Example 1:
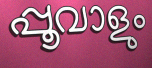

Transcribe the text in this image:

പ്പൂവാളും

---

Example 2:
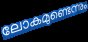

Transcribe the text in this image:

ലോകമുണ്ടെന്നും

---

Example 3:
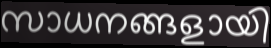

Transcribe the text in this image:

സാധനങ്ങളായി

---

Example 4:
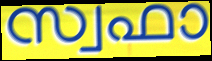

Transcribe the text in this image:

സ്വഫാ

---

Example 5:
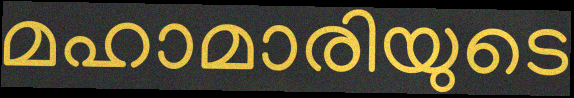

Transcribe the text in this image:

മഹാമാരിയുടെ